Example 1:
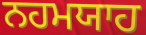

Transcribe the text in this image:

ਨਹਮਯਾਹ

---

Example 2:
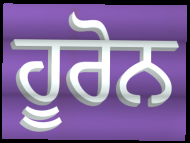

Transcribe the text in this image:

ਹੂਰੋਨ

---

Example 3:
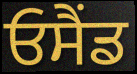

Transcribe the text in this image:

ਓਸੈਂਡ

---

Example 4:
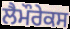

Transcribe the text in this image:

ਲੈਮੌਰੇਕਸ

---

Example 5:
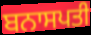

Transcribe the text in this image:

ਬਨਾਸਪਤੀ